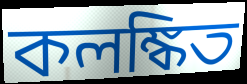
কলঙ্কিত